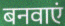
बनवाएं